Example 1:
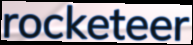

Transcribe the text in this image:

rocketeer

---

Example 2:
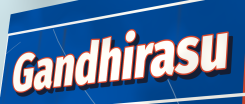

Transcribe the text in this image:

Gandhirasu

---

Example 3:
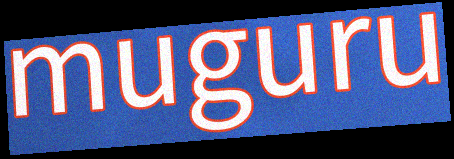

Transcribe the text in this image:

muguru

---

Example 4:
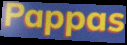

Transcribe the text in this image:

Pappas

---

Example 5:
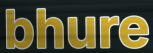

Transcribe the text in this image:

bhure